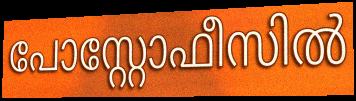
പോസ്റ്റോഫീസിൽ